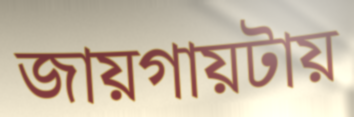
জায়গায়টায়